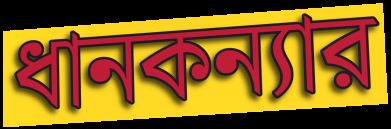
ধানকন্যার